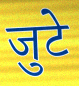
जुटे